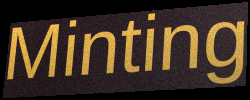
Minting